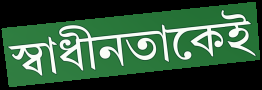
স্বাধীনতাকেই